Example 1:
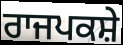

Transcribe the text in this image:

ਰਾਜਪਕਸ਼ੇ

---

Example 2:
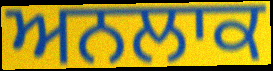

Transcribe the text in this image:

ਅਨਲਾਕ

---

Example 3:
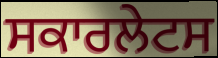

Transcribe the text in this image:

ਸਕਾਰਲੇਟਸ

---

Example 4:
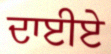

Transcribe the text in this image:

ਦਾਈਏ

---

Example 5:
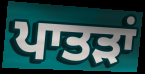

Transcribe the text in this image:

ਪਾਤੜਾਂ